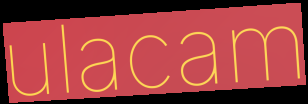
ulacam